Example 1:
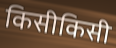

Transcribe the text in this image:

किसीकिसी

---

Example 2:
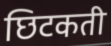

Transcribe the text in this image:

छिटकती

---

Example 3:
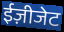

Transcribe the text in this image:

ईज़ीजेट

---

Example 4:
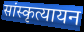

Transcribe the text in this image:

सांस्कृत्यायन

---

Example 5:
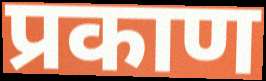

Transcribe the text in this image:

प्रकाण